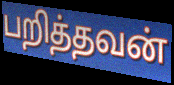
பறித்தவன்